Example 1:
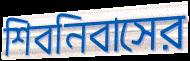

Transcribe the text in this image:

শিবনিবাসের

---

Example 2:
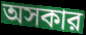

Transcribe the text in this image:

অসকার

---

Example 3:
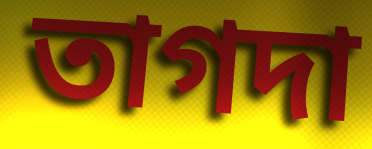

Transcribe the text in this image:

তাগদা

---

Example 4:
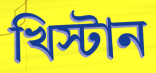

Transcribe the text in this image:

খিস্টান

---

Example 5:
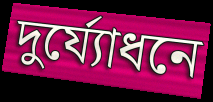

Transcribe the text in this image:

দুর্য্যোধনে